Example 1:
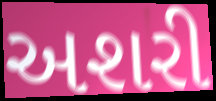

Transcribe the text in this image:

અશરી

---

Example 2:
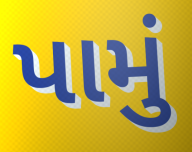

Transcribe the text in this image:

પામું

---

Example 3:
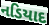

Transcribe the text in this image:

નડિયાદ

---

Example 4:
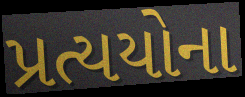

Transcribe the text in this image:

પ્રત્યયોના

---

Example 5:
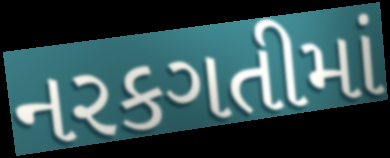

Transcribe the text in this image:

નરકગતીમાં